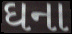
ઘના